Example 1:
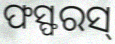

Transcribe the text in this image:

ଫସ୍ଫରସ୍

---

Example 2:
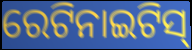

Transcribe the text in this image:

ରେଟିନାଇଟିସ୍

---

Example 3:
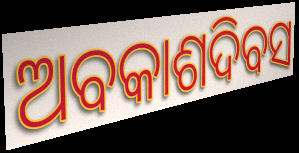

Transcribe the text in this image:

ଅବକାଶଦିବସ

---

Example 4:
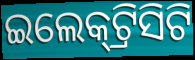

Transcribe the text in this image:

ଇଲେକ୍‌ଟ୍ରିସିଟି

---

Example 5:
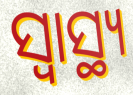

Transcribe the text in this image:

ସ୍ୱାସ୍ଥ୍ୟ